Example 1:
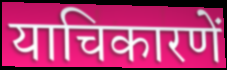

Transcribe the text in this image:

याचिकारणें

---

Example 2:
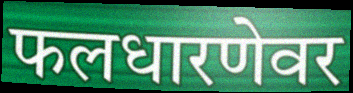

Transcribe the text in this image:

फलधारणेवर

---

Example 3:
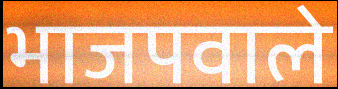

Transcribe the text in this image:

भाजपवाले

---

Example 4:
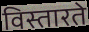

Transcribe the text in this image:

विस्तारते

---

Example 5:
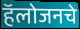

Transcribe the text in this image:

हॅलोजनचे